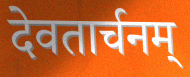
देवतार्चनम्